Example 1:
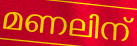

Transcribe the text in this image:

മണലിന്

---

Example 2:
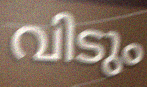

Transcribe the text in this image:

വിടും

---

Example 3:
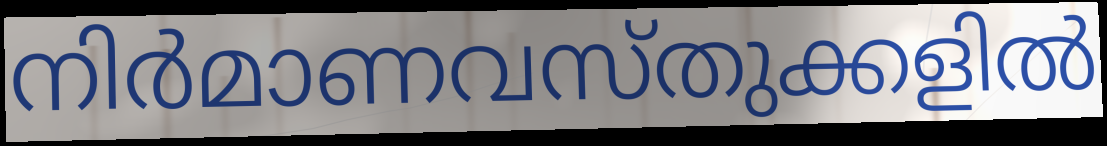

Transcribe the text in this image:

നിർമാണവസ്തുക്കളിൽ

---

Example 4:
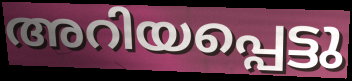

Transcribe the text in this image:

അറിയപ്പെട്ടു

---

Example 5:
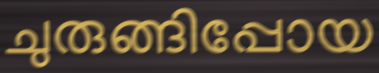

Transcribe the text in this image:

ചുരുങ്ങിപ്പോയ